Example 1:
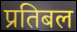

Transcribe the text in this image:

प्रतिबल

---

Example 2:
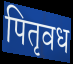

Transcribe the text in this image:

पितृवध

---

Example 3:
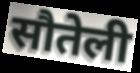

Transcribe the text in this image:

सौतेली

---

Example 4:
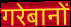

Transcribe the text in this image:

गरेबानों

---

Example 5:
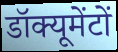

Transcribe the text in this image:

डॉक्यूमेंटों